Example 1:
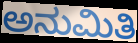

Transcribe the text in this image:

ಅನುಮಿತಿ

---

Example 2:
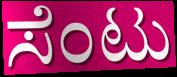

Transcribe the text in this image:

ಸೆಂಟು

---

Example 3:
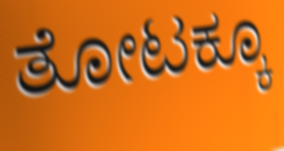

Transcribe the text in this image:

ತೋಟಕ್ಕೂ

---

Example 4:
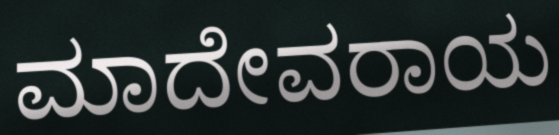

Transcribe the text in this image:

ಮಾದೇವರಾಯ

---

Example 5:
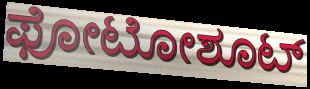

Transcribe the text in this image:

ಫೋಟೋಶೂಟ್